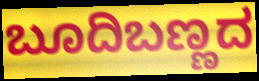
ಬೂದಿಬಣ್ಣದ